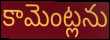
కామెంట్లను